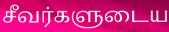
சீவர்களுடைய